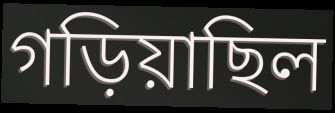
গড়িয়াছিল